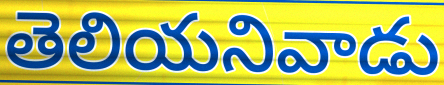
తెలియనివాడు